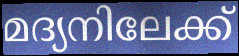
മദ്യനിലേക്ക്